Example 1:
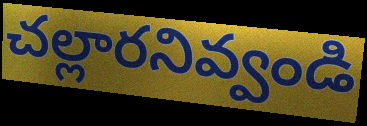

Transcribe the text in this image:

చల్లారనివ్వండి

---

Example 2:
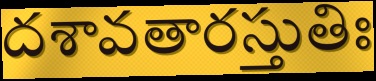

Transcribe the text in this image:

దశావతారస్తుతిః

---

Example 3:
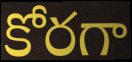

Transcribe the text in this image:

కోరగా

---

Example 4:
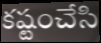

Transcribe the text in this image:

కష్టంచేసి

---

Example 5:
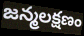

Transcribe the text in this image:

జన్మలక్షణం